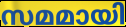
സമമായി